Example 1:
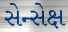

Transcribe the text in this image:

સેન્સેક્ષ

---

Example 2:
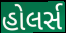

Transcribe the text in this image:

હોલર્સ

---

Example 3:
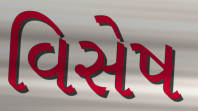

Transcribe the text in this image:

વિસેષ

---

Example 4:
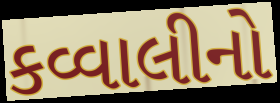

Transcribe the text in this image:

કવ્વાલીનો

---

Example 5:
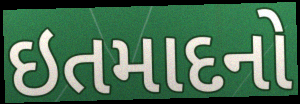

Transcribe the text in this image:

ઇતમાદનો